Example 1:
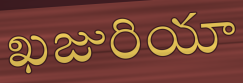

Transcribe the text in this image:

ఖజురియా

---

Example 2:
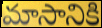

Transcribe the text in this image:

మాసానికి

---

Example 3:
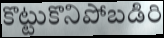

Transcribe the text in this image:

కొట్టుకొనిపోబడిరి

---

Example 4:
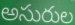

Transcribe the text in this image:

అసురుల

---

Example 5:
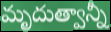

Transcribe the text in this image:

మృదుత్వాన్నీ